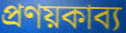
প্রণয়কাব্য